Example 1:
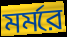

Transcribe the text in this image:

মর্মরে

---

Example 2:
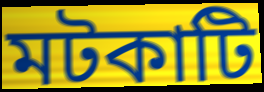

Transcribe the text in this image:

মটকাটি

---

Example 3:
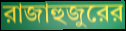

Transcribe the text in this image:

রাজাহুজুরের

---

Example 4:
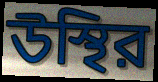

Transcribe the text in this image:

উস্থির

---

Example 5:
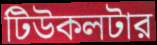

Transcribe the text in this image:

টিউকলটার